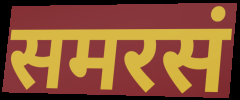
समरसं